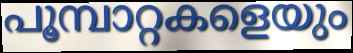
പൂമ്പാറ്റകളെയും